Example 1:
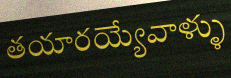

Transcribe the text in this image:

తయారయ్యేవాళ్ళు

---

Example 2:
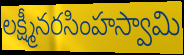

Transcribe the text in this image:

లక్ష్మీనరసింహస్వామి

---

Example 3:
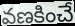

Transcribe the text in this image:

వణకించే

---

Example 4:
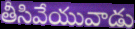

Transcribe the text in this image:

తీసివేయువాడు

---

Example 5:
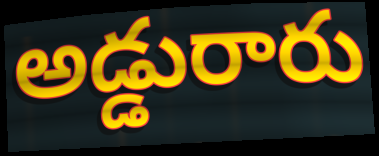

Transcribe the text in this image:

అడ్డురారు